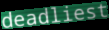
deadliest